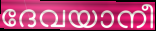
ദേവയാനീ